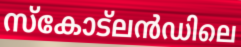
സ്കോട്ലൻഡിലെ